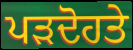
ਪੜਦੋਹਤੇ